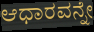
ಆಧಾರವನ್ನೇ